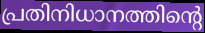
പ്രതിനിധാനത്തിന്റെ